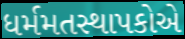
ધર્મમતસ્થાપકોએ